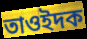
তাওইদক